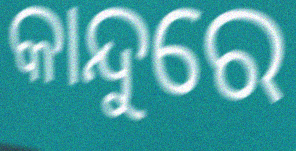
କାନ୍ଦୁରେ